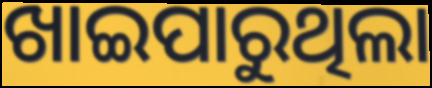
ଖାଇପାରୁଥିଲା